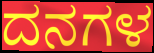
ದನಗಳ